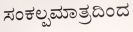
ಸಂಕಲ್ಪಮಾತ್ರದಿಂದ